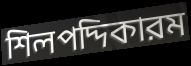
শিলপদ্দিকারম